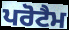
ਪਰੋਟੈਮ